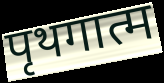
पृथगात्म